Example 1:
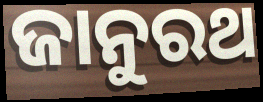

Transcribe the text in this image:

ଜାନୁରଥ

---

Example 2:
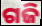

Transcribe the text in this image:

ଗଜି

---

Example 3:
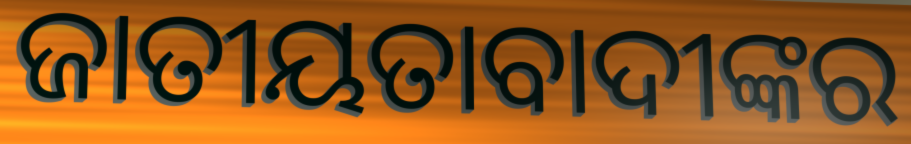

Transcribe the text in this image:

ଜାତୀୟତାବାଦୀଙ୍କର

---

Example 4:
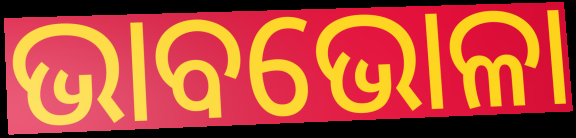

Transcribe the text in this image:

ଭାବଭୋଳା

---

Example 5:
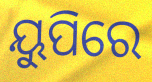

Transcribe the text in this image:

ୟୁପିରେ